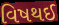
વિષથઈ